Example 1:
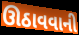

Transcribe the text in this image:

ઊઠાવવાની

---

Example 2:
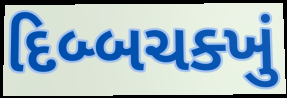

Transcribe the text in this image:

દિબ્બચક્ખું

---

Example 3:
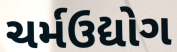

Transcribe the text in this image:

ચર્મઉદ્યોગ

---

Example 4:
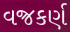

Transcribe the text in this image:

વજ્રકર્ણ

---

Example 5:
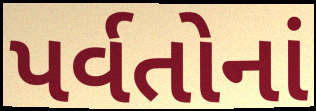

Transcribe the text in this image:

પર્વતોનાં